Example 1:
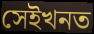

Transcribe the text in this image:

সেইখনত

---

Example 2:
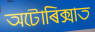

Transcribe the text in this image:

অটোৰিক্সাত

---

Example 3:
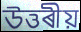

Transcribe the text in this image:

উত্তৰীয়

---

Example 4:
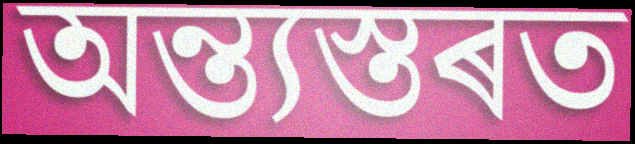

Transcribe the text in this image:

অন্ত্যস্তৰত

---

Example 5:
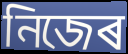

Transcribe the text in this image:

নিজেৰ